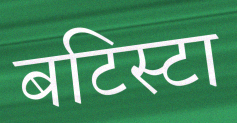
बटिस्टा